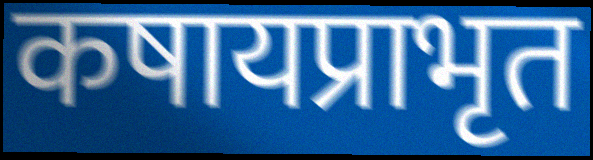
कषायप्राभृत